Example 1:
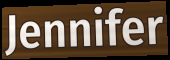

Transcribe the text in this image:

Jennifer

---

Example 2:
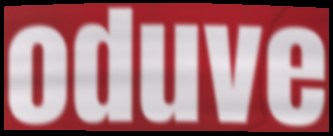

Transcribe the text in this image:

oduve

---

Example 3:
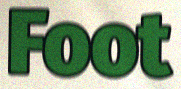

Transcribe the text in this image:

Foot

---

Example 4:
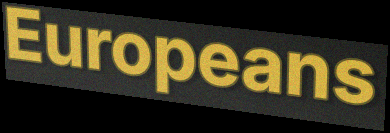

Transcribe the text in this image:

Europeans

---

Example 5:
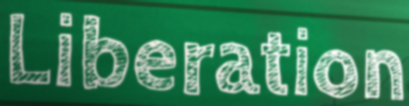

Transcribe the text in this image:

Liberation